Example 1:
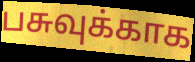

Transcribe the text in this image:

பசுவுக்காக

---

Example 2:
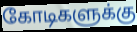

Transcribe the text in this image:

கோடிகளுக்கு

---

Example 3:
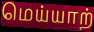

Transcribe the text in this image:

மெய்யாற்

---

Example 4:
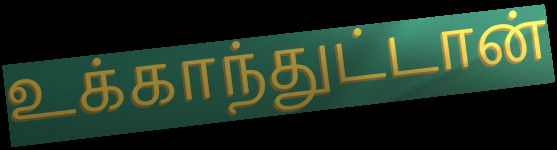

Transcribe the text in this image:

உக்காந்துட்டான்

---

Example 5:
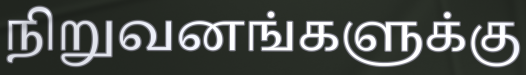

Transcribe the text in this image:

நிறுவனங்களுக்கு